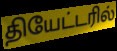
தியேட்டரில்